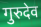
गुरुदेव